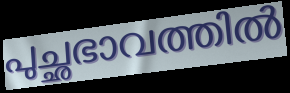
പുച്ഛഭാവത്തിൽ